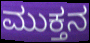
ಮುಕ್ತನ